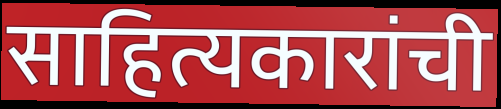
साहित्यकारांची